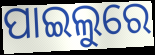
ପାଇଲୁରେ